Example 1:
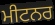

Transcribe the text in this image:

ਮੀਟਨਰ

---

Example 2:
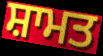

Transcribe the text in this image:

ਸ਼ਾਮਤ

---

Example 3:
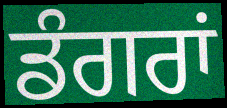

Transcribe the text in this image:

ਡੰਗਰਾਂ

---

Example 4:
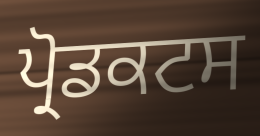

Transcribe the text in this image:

ਪ੍ਰੋਡਕਟਸ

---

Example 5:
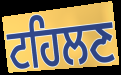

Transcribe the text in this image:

ਟਹਿਲਣ